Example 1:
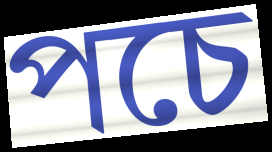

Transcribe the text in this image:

পচে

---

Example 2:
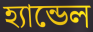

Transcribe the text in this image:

হ্যান্ডেল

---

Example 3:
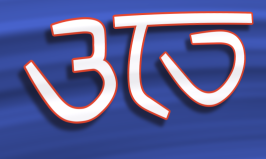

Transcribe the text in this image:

ওতে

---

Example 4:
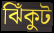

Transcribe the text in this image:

ঝিঁকুট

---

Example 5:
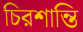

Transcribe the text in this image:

চিরশান্তি